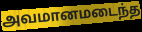
அவமானமடைந்த